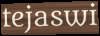
tejaswi